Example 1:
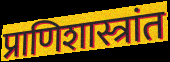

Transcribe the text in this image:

प्राणिशास्त्रांत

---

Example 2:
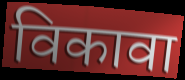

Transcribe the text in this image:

विकावा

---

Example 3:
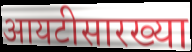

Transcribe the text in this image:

आयटीसारख्या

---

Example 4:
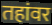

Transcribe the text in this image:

तहांवर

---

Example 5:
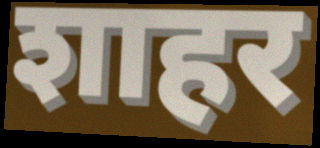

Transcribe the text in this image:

शाहर